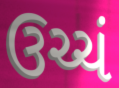
ઉચ્ચં